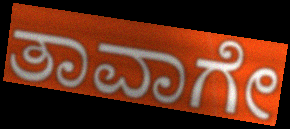
ತಾವಾಗೇ